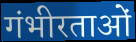
गंभीरताओं